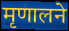
मृणालने